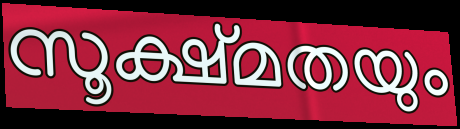
സൂക്ഷ്മതയും